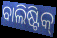
ବାଲିଷ୍ଟିକ୍